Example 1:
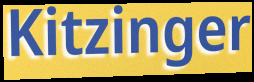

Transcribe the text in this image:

Kitzinger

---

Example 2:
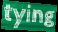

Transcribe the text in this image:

tying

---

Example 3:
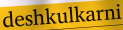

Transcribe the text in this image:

deshkulkarni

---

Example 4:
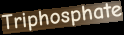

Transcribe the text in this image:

Triphosphate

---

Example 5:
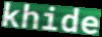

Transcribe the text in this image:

khide